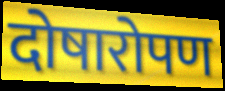
दोषारोपण